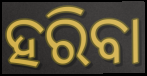
ହରିବା